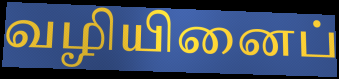
வழியினைப்